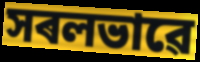
সৰলভাৱে